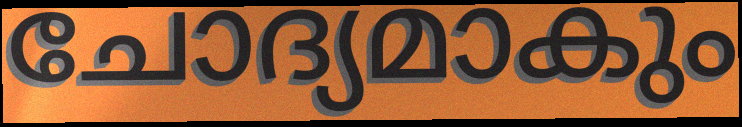
ചോദ്യമാകും